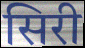
सिरी